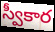
స్వీకార